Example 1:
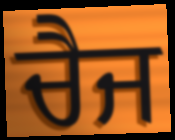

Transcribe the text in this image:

ਚੈਜ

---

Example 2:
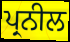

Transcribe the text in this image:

ਪ੍ਰਨੀਲ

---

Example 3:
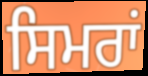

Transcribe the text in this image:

ਸਿਮਰਾਂ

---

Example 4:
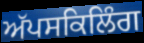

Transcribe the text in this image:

ਅੱਪਸਕਿਲਿੰਗ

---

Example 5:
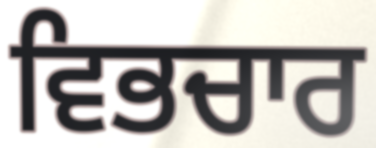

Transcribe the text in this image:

ਵਿਭਚਾਰ